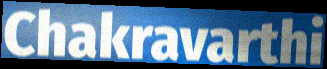
Chakravarthi